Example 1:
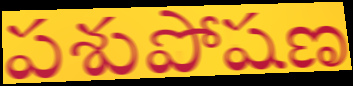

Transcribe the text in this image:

పశుపోషణ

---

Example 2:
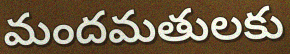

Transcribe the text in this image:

మందమతులకు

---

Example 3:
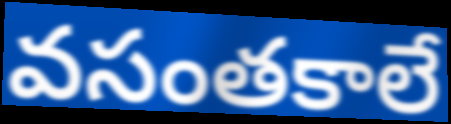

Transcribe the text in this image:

వసంతకాలే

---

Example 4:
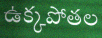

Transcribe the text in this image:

ఉక్కపోతల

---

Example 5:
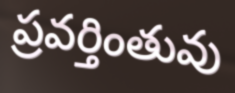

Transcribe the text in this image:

ప్రవర్తింతువు